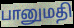
பானுமதி